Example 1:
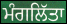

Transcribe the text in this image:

ਮੰਗਲਿੱਤਾ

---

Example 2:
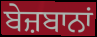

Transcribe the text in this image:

ਬੇਜ਼ਬਾਨਾਂ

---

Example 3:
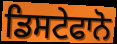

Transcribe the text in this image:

ਡਿਸਟੇਫਾਨੋ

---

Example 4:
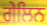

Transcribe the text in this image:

ਗੇਲਿਨ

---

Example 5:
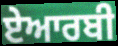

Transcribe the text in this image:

ਏਆਰਬੀ